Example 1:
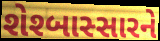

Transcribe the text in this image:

શેશ્બાસ્સારને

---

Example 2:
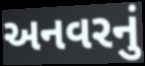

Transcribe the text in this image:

અનવરનું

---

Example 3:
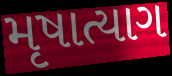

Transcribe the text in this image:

મૃષાત્યાગ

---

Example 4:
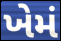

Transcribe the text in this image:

ખેમં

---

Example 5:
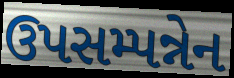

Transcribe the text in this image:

ઉપસમ્પન્નેન